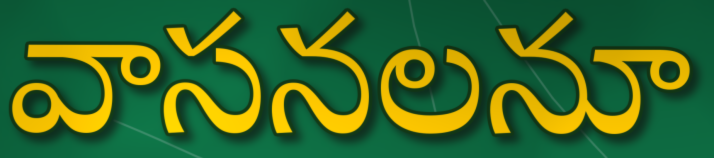
వాసనలనూ